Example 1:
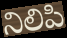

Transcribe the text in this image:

నిలిపి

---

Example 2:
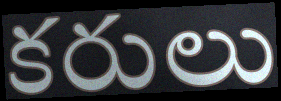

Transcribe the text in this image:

కరులు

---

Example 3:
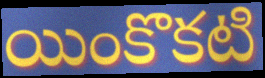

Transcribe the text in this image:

యింకొకటి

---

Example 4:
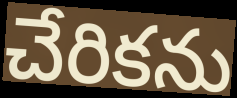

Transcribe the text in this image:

చేరికను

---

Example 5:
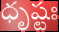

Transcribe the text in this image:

ధృష్టః